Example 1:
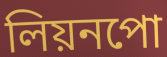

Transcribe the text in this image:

লিয়নপো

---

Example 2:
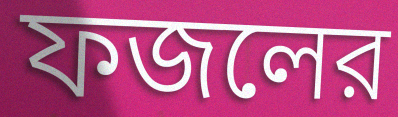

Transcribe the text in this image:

ফজলের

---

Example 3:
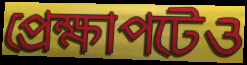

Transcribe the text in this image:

প্রেক্ষাপটেও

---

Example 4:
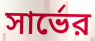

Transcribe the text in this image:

সার্ভের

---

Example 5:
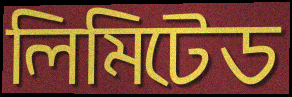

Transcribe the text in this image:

লিমিটেড